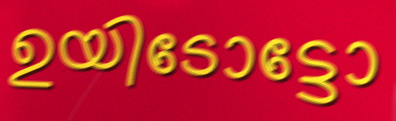
ഉയിടോട്ടോ